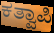
ಕತ್ವಾಪಿ